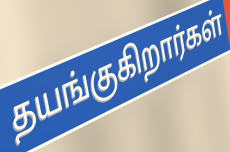
தயங்குகிறார்கள்